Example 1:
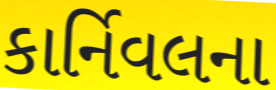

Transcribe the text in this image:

કાર્નિવલના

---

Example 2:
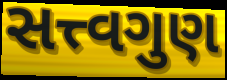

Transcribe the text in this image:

સત્ત્વગુણ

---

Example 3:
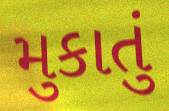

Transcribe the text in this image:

મુકાતું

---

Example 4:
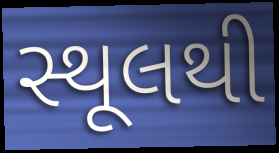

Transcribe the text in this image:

સ્થૂલથી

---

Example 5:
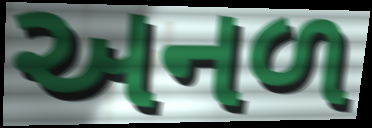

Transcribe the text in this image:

અનળ